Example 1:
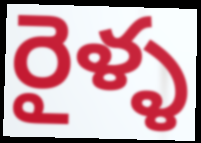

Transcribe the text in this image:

రైళ్ళ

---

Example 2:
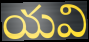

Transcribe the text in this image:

యవి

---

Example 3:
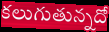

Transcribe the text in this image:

కలుగుతున్నదో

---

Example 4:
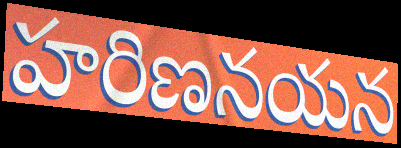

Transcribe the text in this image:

హరిణనయన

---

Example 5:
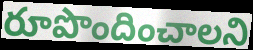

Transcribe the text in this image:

రూపొందించాలని